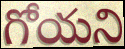
గోయని